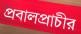
প্রবালপ্রাচীর